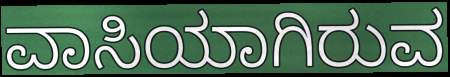
ವಾಸಿಯಾಗಿರುವ